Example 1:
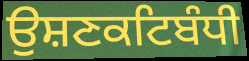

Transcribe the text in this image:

ਉਸ਼ਣਕਟਿਬੰਧੀ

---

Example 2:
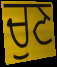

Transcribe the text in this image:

ਚੁਣ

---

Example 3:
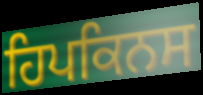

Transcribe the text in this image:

ਹਿਪਕਿਨਸ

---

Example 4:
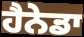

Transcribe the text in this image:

ਹੈਨੇਡਾ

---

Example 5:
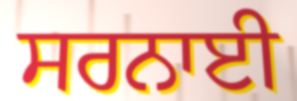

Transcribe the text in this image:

ਸਰਨਾਈ